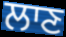
ਲਾਣ